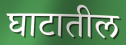
घाटातील